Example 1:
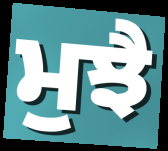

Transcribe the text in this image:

ਮੁਝੈ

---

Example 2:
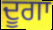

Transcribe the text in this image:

ਦੂਗਾ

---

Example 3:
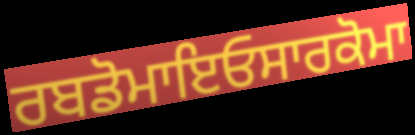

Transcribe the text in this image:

ਰਬਡੋਮਾਇਓਸਾਰਕੋਮਾ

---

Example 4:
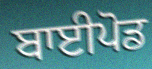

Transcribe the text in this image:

ਬਾਈਪੋਡ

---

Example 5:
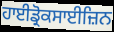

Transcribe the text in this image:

ਹਾਈਡ੍ਰੋਕਸਾਈਜ਼ਿਨ